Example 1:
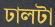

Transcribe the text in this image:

ঢালটা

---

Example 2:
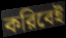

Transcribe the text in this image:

করিবেই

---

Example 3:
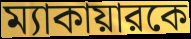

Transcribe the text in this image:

ম্যাকায়ারকে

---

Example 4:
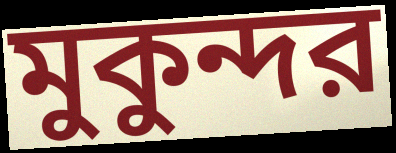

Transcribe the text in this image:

মুকুন্দর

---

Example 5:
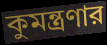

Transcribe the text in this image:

কুমন্ত্রণার